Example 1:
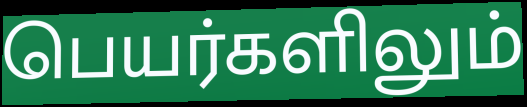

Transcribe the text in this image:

பெயர்களிலும்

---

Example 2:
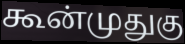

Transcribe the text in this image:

கூன்முதுகு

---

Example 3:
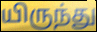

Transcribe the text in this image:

யிருந்து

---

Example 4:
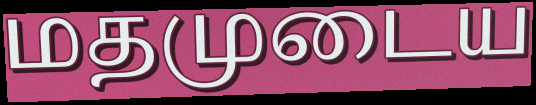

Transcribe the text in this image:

மதமுடைய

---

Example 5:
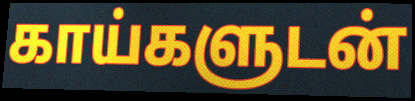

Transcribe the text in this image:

காய்களுடன்